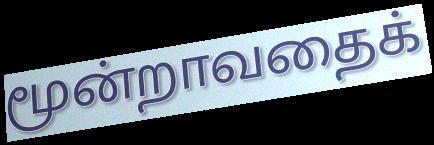
மூன்றாவதைக்